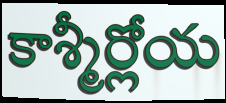
కాశ్మీర్లోయ